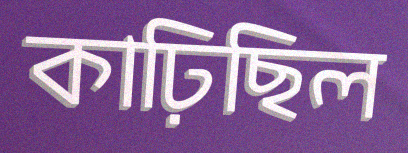
কাঢ়িছিল